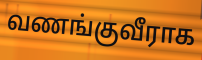
வணங்குவீராக